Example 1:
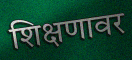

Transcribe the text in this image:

शिक्षणावर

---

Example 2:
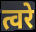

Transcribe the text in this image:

त्वरे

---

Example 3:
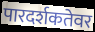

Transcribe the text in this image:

पारदर्शकतेवर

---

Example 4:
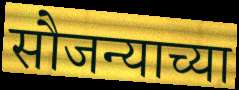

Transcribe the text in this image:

सौजन्याच्या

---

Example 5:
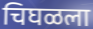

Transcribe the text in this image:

चिघळला